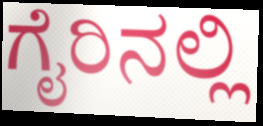
ಗೈರಿನಲ್ಲಿ